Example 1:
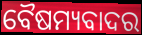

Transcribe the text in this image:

ବୈଷମ୍ୟବାଦର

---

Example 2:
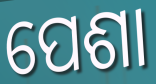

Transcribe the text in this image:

ପେଶା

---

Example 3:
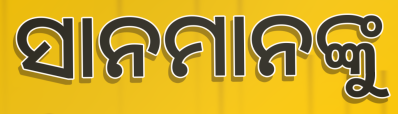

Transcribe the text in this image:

ସାନମାନଙ୍କୁ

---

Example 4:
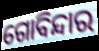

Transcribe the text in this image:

ଗୋବିନ୍ଦାର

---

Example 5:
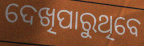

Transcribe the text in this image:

ଦେଖିପାରୁଥିବେ